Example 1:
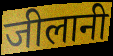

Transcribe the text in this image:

जीलानी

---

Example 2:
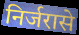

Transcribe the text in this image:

निर्जरासे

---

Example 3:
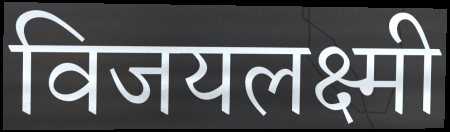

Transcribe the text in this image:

विजयलक्ष्मी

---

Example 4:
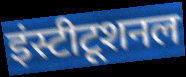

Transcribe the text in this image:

इंस्टीटूशनल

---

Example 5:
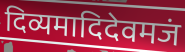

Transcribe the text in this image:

दिव्यमादिदेवमजं